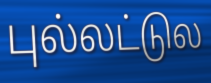
புல்லட்டுல